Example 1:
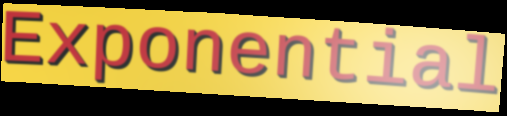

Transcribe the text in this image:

Exponential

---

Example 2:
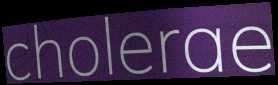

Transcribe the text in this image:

cholerae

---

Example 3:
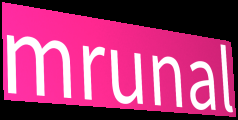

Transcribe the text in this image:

mrunal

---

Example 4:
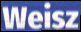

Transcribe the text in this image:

Weisz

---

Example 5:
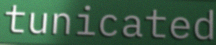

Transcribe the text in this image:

tunicated